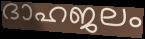
ദാഹജലം